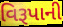
વિરૂપાની